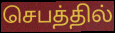
செபத்தில்